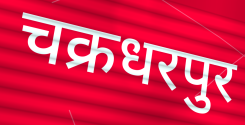
चक्रधरपुर